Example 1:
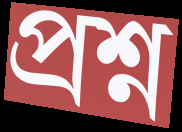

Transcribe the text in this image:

প্ৰশ্ন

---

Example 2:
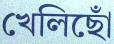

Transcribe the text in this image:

খেলিছোঁ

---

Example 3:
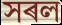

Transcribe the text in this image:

সৰল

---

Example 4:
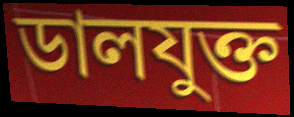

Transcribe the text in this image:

ডালযুক্ত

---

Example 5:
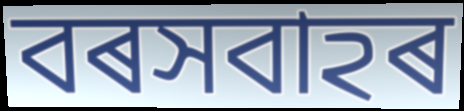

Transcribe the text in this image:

বৰসবাহৰ